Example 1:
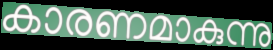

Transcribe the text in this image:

കാരണമാകുന്നു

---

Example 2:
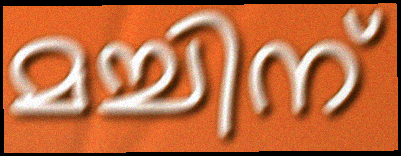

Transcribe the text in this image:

മച്ചിന്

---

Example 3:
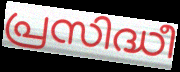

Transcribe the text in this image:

പ്രസിദ്ധീ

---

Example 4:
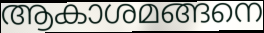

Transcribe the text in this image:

ആകാശമങ്ങനെ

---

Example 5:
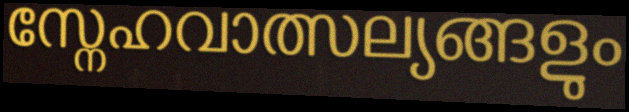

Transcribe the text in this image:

സ്നേഹവാത്സല്യങ്ങളും